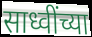
साध्वींच्या